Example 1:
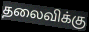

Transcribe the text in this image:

தலைவிக்கு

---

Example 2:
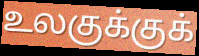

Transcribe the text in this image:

உலகுக்குக்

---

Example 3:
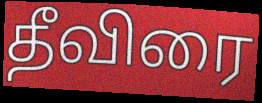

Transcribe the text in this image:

தீவிரை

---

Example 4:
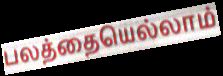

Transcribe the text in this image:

பலத்தையெல்லாம்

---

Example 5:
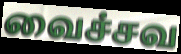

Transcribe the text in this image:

வைச்சவ